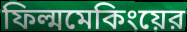
ফিল্মমেকিংয়ের